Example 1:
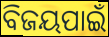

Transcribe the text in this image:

ବିଜୟପାଇଁ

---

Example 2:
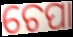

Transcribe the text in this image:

ଚେପା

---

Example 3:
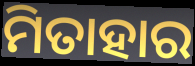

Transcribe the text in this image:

ମିତାହାର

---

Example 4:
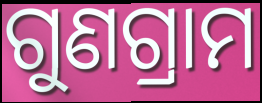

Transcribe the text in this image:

ଗୁଣଗ୍ରାମ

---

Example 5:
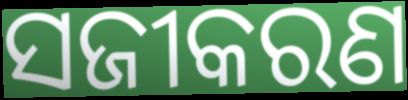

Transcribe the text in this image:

ସଜୀକରଣ